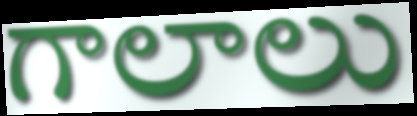
గాలాలు